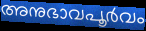
അനുഭാവപൂർവം